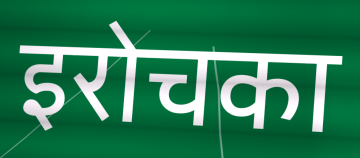
इरोचका